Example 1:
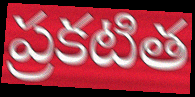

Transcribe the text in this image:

ప్రకటిత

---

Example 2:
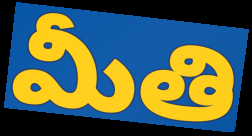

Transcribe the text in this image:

మీతి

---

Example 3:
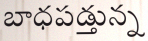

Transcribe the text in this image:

బాధపడ్తున్న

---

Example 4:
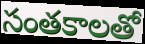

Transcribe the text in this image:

సంతకాలతో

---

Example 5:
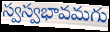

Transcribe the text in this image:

స్వస్వభావమగు